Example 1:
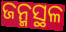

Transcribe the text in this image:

ଜନ୍ମସ୍ଥଳ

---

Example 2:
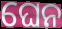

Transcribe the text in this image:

ଘେନ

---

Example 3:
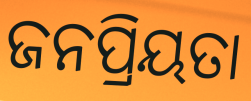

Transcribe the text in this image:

ଜନପ୍ରିୟତା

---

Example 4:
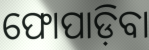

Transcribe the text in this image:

ଫୋପାଡ଼ିବା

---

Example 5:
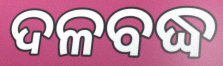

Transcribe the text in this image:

ଦଳବଦ୍ଧ